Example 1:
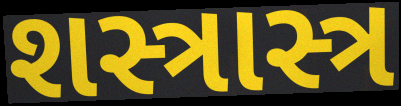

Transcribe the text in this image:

શસ્ત્રાસ્ત્ર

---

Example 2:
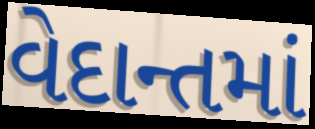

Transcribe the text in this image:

વેદાન્તમાં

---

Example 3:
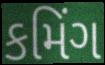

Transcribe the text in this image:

કમિંગ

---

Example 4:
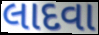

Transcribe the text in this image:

લાદવા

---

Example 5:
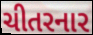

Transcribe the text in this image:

ચીતરનાર